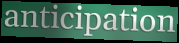
anticipation